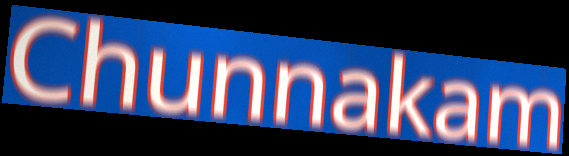
Chunnakam